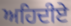
ਅਹਿਦੀਏ